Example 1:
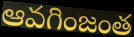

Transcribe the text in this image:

ఆవగింజంత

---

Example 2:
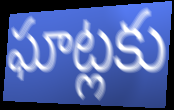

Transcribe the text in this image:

ఘాట్లకు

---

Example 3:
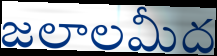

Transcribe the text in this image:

జలాలమీద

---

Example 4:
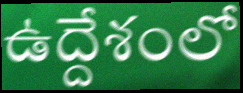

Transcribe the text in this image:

ఉద్దేశంలో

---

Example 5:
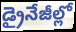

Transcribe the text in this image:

డ్రైనేజీల్లో